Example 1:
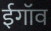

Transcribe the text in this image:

ईगॉव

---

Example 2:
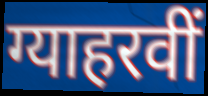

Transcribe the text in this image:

ग्याहरवीं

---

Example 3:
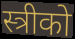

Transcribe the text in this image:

स्त्रीको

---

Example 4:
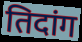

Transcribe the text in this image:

तिदांग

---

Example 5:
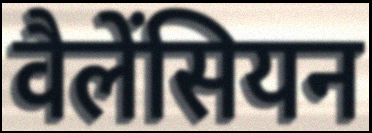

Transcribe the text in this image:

वैलेंसियन